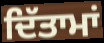
ਦਿੱਤਾਮਾਂ